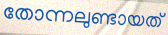
തോന്നലുണ്ടായത്